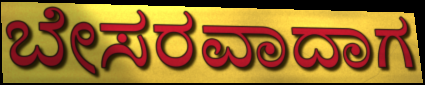
ಬೇಸರವಾದಾಗ